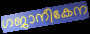
ഗജാനീകേന